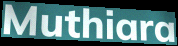
Muthiara